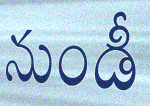
నుండీ